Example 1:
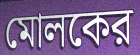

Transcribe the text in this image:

মোলকের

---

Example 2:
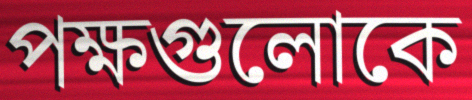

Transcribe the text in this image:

পক্ষগুলোকে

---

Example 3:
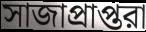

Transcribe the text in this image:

সাজাপ্রাপ্তরা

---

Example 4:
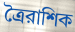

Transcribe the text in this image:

ত্রৈরাশিক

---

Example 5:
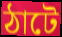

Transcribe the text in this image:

ঠাটে